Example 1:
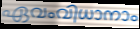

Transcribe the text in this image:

ഏവംവിധാനാം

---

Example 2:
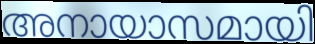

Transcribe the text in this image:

അനായാസമായി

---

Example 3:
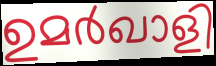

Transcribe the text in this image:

ഉമർഖാളി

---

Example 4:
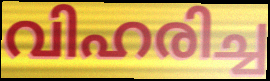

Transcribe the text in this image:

വിഹരിച്ച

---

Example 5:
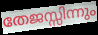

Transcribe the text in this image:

തേജസ്സിന്നും